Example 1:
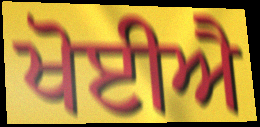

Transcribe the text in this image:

ਖੋਈਐ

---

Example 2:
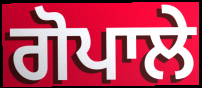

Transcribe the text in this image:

ਗੋਪਾਲੇ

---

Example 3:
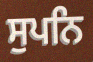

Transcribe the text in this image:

ਸੁਪਨਿ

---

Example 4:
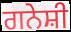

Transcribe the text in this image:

ਗਨੇਸ਼ੀ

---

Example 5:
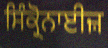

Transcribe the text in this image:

ਸਿੰਕ੍ਰੋਨਾਈਜ਼